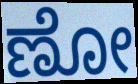
ಣೋ